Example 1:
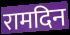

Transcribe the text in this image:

रामदिन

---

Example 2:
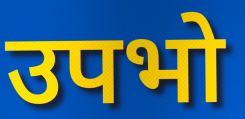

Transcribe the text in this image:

उपभो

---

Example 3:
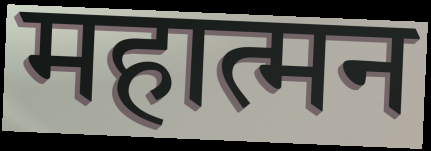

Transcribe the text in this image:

महात्मन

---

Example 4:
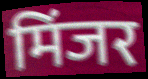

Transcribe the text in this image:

मिंजर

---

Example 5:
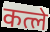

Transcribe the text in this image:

कत्ले